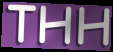
THH